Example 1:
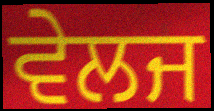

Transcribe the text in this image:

ਵੇਲਜ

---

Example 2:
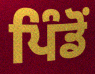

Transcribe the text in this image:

ਪਿੰਡੋਂ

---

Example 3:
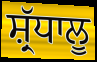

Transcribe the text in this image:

ਸ਼੍ਰੱਧਾਲੂ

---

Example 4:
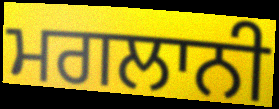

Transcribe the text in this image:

ਮਗਲਾਨੀ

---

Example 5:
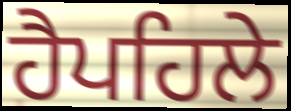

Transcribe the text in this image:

ਹੈਪਹਿਲੇ